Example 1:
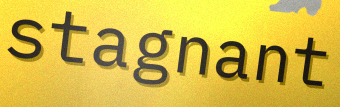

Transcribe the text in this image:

stagnant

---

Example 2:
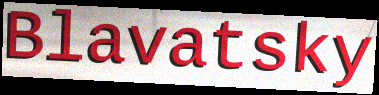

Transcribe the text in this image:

Blavatsky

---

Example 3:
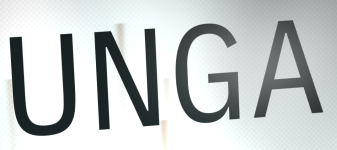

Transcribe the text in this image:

UNGA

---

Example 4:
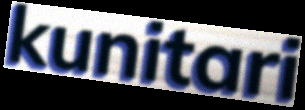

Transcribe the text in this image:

kunitari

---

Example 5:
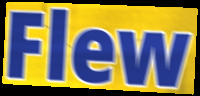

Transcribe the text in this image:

Flew